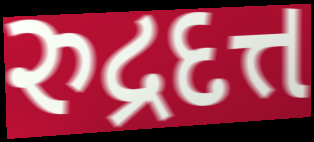
રુદ્રદત્ત